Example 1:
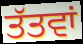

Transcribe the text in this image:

ਤੱਤਵਾਂ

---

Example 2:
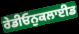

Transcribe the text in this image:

ਰੇਡੀਓਨੁਕਲਾਈਡ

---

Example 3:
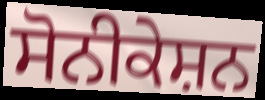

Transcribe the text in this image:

ਸੋਨੀਕੇਸ਼ਨ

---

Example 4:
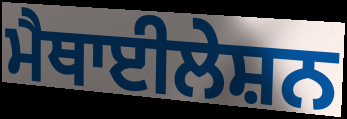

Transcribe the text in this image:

ਮੈਥਾਈਲੇਸ਼ਨ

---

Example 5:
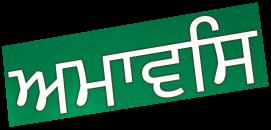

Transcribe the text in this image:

ਅਮਾਵਸਿ